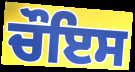
ਚੌਇਸ